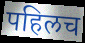
पहिलच